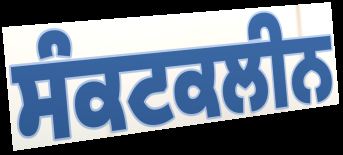
ਸੰਕਟਕਲੀਨ